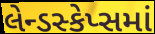
લેન્ડસ્કેપ્સમાં